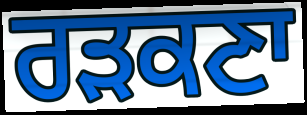
ਰੜਕਣਾ